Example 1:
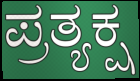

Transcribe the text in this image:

ಪ್ರತ್ಯಕ್ಷ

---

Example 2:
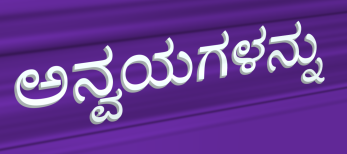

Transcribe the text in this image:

ಅನ್ವಯಗಳನ್ನು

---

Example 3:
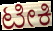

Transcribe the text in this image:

ಟೀಕಿ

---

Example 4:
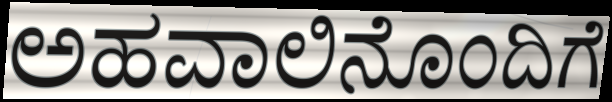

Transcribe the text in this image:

ಅಹವಾಲಿನೊಂದಿಗೆ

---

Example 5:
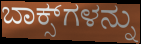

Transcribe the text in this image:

ಬಾಕ್ಸ್‌ಗಳನ್ನು